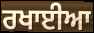
ਰਖਾਈਆ